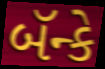
બૅન્કે